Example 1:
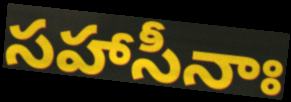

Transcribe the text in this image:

సహాసీనాః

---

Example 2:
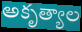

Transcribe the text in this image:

అకృత్యాల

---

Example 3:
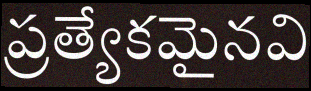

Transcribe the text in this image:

ప్రత్యేకమైనవి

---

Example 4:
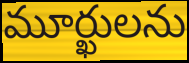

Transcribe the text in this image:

మూర్ఖులను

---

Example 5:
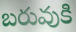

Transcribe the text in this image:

బరువుకి